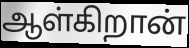
ஆள்கிறான்